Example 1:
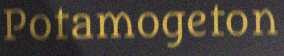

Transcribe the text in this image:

Potamogeton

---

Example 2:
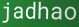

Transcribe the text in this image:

jadhao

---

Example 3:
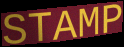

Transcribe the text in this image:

STAMP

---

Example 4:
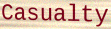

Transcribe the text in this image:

Casualty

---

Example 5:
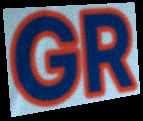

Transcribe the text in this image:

GR